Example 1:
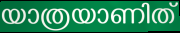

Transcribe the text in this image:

യാത്രയാണിത്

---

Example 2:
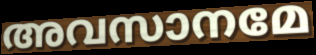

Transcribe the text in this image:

അവസാനമേ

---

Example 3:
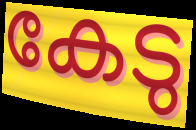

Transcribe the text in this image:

കേടു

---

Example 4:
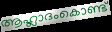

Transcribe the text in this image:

ആഹ്ലാദംകൊണ്ട്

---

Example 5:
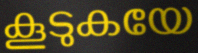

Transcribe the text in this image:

കൂടുകയേ